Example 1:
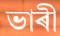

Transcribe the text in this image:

ভাৰী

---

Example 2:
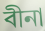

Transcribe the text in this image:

বীনা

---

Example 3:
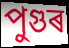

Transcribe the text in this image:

পুগুৰ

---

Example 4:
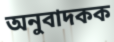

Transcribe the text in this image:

অনুবাদকক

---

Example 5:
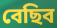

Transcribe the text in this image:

বেছিব